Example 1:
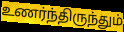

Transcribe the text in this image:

உணர்ந்திருந்தும்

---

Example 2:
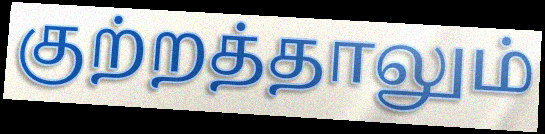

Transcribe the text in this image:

குற்றத்தாலும்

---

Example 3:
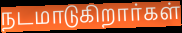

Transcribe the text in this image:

நடமாடுகிறார்கள்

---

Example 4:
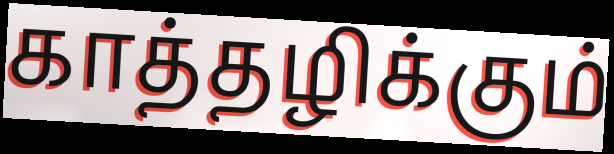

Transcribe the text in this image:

காத்தழிக்கும்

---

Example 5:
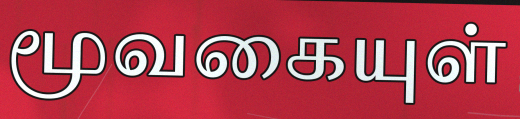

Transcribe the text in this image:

மூவகையுள்